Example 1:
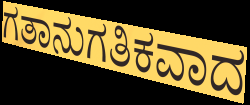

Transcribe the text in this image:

ಗತಾನುಗತಿಕವಾದ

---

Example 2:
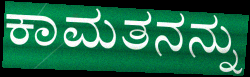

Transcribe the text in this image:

ಕಾಮತನನ್ನು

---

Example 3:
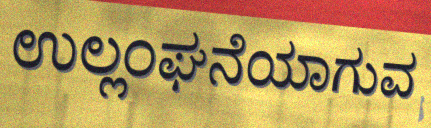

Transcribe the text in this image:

ಉಲ್ಲಂಘನೆಯಾಗುವ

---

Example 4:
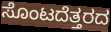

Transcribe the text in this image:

ಸೊಂಟದೆತ್ತರದ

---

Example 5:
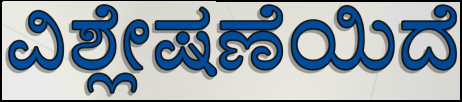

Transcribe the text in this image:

ವಿಶ್ಲೇಷಣೆಯಿದೆ